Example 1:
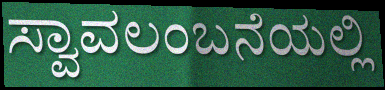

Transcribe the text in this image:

ಸ್ವಾವಲಂಬನೆಯಲ್ಲಿ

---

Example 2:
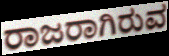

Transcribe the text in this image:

ರಾಜರಾಗಿರುವ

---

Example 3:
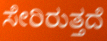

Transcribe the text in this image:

ಸೇರಿರುತ್ತದೆ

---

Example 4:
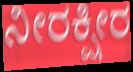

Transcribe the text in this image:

ನೀರಕ್ಷೀರ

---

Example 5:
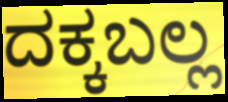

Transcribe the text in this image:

ದಕ್ಕಬಲ್ಲ